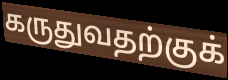
கருதுவதற்குக்